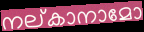
നല്കാനാമോ